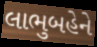
લાભુબહેને